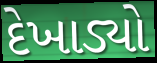
દેખાડ્યો